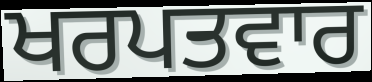
ਖਰਪਤਵਾਰ